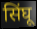
सिंघू